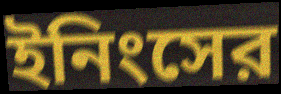
ইনিংসের